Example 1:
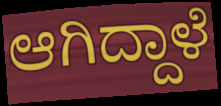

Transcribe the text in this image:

ಆಗಿದ್ದಾಳೆ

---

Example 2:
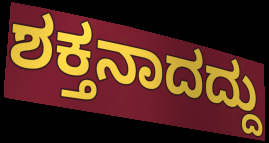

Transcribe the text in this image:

ಶಕ್ತನಾದದ್ದು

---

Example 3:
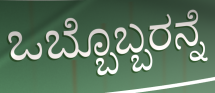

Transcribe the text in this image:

ಒಬ್ಬೊಬ್ಬರನ್ನೆ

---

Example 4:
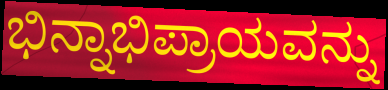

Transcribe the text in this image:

ಭಿನ್ನಾಭಿಪ್ರಾಯವನ್ನು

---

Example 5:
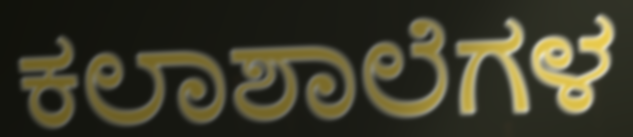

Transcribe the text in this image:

ಕಲಾಶಾಲೆಗಳ